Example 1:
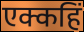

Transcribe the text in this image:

एक्कहिं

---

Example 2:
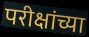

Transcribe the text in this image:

परीक्षांच्या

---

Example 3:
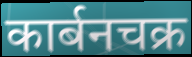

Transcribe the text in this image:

कार्बनचक्र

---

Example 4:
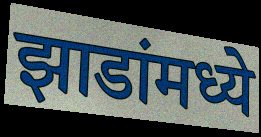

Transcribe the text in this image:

झाडांमध्ये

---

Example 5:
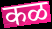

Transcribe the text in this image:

कळ